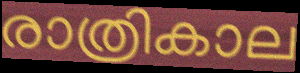
രാത്രികാല